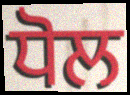
ਧੋਲ